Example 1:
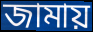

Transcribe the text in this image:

জামায়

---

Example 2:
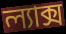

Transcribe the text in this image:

ল্যাক্স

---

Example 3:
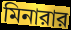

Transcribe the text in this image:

মিনারার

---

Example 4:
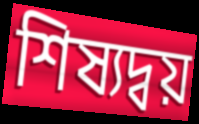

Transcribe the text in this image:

শিষ্যদ্বয়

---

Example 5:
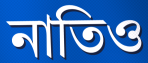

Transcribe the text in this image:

নাতিও